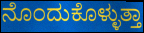
ನೊಂದುಕೊಳ್ಳುತ್ತಾ